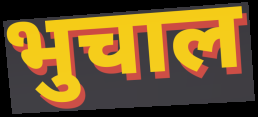
भुचाल